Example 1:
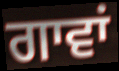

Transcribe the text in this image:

ਗਾਵਾਂ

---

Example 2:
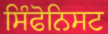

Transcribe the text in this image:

ਸਿੰਫੋਨਿਸਟ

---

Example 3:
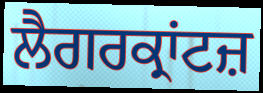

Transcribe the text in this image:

ਲੈਗਰਕ੍ਰਾਂਟਜ਼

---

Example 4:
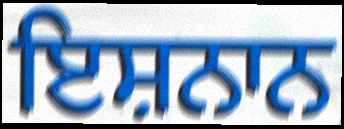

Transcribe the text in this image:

ਇਸ਼ਨਾਨ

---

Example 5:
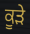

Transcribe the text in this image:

ਕੂੜੇ